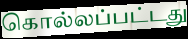
கொல்லப்பட்டது